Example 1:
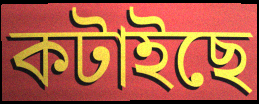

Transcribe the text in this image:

কটাইছে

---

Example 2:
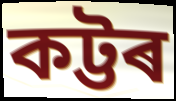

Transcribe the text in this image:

কট্টৰ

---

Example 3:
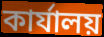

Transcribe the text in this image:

কাৰ্যালয়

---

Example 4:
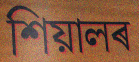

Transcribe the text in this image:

শিয়ালৰ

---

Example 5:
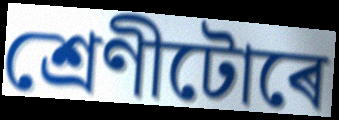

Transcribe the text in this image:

শ্ৰেণীটোৰে